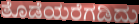
ತೊಡೆಯರೆಗಡಿದು